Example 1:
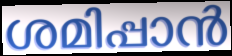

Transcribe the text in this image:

ശമിപ്പാൻ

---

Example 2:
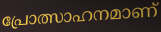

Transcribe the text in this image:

പ്രോത്സാഹനമാണ്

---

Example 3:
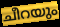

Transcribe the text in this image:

ചീറയും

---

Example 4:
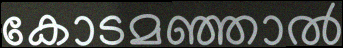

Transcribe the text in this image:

കോടമഞ്ഞാൽ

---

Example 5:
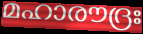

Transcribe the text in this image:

മഹാരൗദ്രഃ